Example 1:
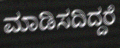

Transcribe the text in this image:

ಮಾಡಿಸದಿದ್ದರೆ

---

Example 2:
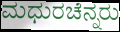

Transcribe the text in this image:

ಮಧುರಚೆನ್ನರು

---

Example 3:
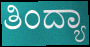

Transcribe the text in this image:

ತಿಂದ್ಯಾ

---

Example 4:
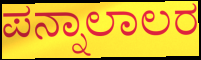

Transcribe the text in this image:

ಪನ್ನಾಲಾಲರ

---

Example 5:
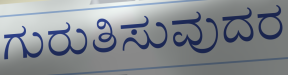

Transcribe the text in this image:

ಗುರುತಿಸುವುದರ